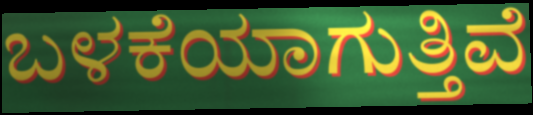
ಬಳಕೆಯಾಗುತ್ತಿವೆ